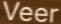
Veer